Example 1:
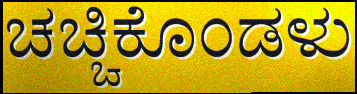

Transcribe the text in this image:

ಚಚ್ಚಿಕೊಂಡಳು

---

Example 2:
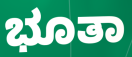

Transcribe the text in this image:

ಭೂತಾ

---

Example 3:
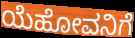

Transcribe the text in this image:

ಯೆಹೋವನಿಗೆ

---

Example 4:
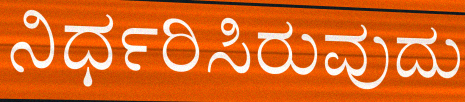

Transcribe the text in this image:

ನಿರ್ಧರಿಸಿರುವುದು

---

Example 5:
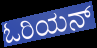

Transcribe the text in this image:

ಓರಿಯನ್